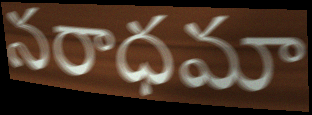
నరాధమా